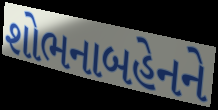
શોભનાબહેનને